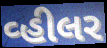
વ્હીલર